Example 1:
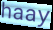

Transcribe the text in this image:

haay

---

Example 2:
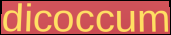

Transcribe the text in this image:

dicoccum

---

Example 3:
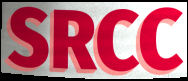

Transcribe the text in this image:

SRCC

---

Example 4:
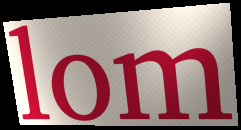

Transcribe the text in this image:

lom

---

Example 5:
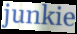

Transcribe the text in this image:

junkie